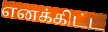
எனக்கிட்ட